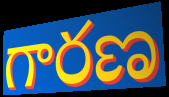
గారణ